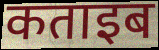
कताइब